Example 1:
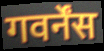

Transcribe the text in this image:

गवर्नेंस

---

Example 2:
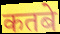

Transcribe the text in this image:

कतबे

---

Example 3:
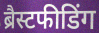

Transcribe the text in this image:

ब्रैस्टफीडिंग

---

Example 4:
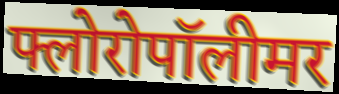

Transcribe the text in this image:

फ्लोरोपॉलीमर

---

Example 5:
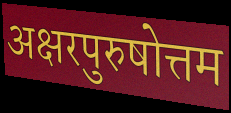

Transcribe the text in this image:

अक्षरपुरुषोत्तम